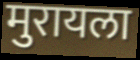
मुरायला